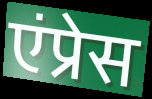
एंप्रेस